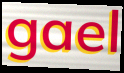
gael